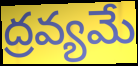
ద్రవ్యమే